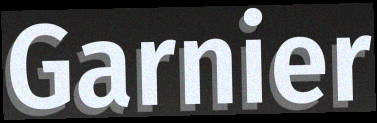
Garnier